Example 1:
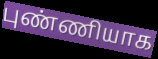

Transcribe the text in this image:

புண்ணியாக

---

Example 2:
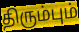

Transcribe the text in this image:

திரும்பும்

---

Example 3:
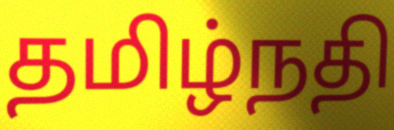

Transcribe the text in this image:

தமிழ்நதி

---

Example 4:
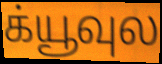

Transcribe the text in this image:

க்யூவுல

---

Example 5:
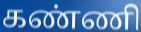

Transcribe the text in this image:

கண்ணி